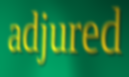
adjured